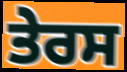
ਤੇਰਸ